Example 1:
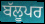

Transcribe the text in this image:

ਬੱਲੂਪਰ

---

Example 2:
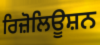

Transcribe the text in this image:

ਰਿਜ਼ੋਲਿਊਸ਼ਨ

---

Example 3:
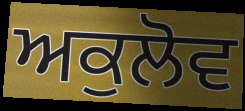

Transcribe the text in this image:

ਅਕੁਲੋਵ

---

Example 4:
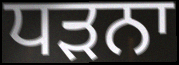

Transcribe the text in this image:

ਧੜਨਾ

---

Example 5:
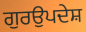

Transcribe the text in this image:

ਗੁਰਉਪਦੇਸ਼